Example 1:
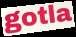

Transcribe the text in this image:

gotla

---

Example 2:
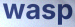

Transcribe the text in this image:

wasp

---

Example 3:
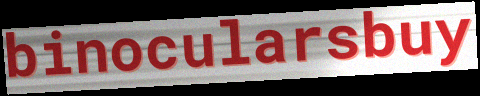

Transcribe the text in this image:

binocularsbuy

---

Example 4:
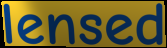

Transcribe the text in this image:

lensed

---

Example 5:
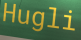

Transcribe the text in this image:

Hugli